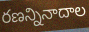
రణన్నినాదాల